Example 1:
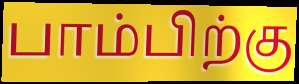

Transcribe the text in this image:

பாம்பிற்கு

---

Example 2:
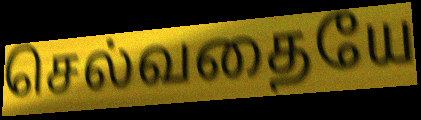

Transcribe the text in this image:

செல்வதையே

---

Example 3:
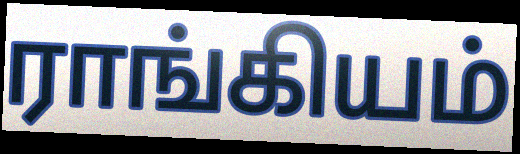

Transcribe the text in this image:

ராங்கியம்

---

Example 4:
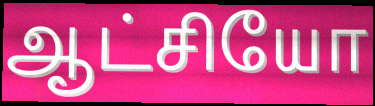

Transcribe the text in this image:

ஆட்சியோ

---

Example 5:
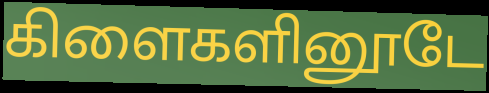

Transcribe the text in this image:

கிளைகளினூடே